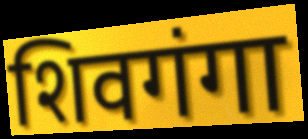
शिवगंगा